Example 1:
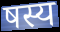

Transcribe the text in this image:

षस्य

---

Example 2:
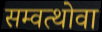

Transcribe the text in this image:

सम्वत्थोवा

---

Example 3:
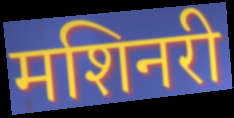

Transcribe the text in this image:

मशिनरी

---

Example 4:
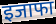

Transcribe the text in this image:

इजाफा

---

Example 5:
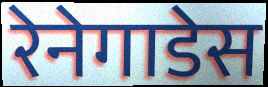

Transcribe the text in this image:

रेनेगाडेस